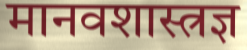
मानवशास्त्रज्ञ